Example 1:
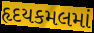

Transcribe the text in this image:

હૃદયકમલમાં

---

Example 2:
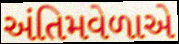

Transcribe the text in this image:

અંતિમવેળાએ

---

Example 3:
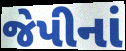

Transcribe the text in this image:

જેપીનાં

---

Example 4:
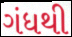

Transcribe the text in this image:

ગંધથી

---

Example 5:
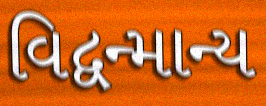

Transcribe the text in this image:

વિદ્વન્માન્ય